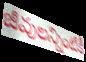
జీవులన్నింటికీ